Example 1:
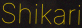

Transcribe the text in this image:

Shikari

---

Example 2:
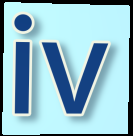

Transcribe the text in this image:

iv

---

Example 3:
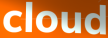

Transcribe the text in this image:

cloud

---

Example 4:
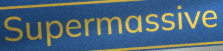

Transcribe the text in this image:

Supermassive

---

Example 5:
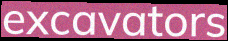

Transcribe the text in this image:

excavators